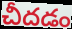
చీదడం